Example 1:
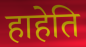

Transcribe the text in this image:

हाहेति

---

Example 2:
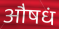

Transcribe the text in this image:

औषधं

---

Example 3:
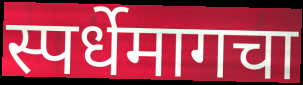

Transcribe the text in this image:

स्पर्धेमागचा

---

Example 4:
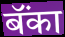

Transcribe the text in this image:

बॅंका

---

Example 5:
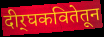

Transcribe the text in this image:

दीर्घकवितेतून